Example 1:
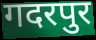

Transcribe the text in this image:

गदरपुर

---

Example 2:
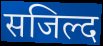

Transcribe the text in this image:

सजिल्द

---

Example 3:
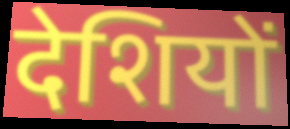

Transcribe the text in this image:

देशियों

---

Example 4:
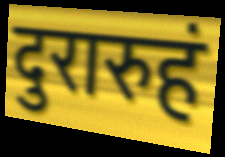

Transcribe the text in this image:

दुरारुहं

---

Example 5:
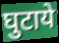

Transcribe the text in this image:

घुटाये